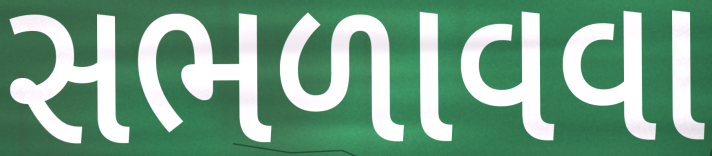
સભળાવવા